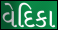
વેદિકા